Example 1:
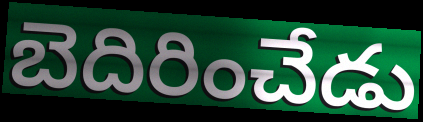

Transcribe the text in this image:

బెదిరించేడు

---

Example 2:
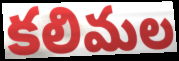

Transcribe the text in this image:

కలిమల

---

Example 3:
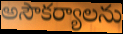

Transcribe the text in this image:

అసౌకర్యాలను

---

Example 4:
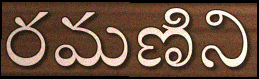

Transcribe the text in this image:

రమణిని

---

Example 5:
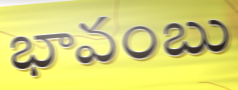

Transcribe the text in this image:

భావంబు